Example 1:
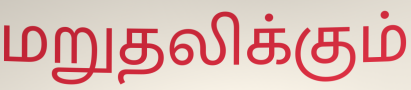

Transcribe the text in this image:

மறுதலிக்கும்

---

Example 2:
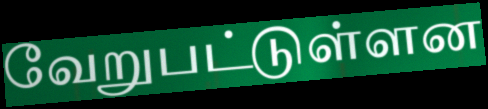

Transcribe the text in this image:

வேறுபட்டுள்ளன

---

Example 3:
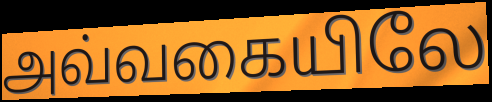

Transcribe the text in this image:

அவ்வகையிலே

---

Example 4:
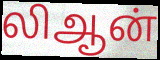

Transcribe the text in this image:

லிஆன்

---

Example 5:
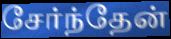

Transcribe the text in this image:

சேர்ந்தேன்